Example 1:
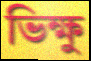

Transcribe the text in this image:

ভিক্ষু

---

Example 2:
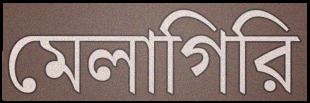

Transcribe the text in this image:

মেলাগিরি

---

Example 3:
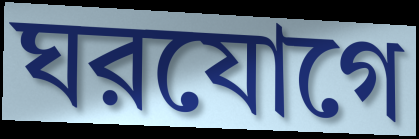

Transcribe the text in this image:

ঘরযোগে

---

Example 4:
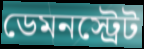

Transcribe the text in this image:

ডেমনস্ট্রেট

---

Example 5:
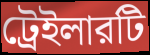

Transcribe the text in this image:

ট্রেইলারটি